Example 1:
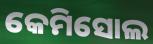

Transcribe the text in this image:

କେମିସୋଲ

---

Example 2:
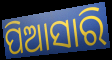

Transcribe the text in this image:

ପିଆସାରି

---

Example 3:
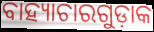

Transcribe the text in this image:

ବାହ୍ୟାଚାରଗୁଡ଼ାକ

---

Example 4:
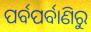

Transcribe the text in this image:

ପର୍ବପର୍ବାଣିରୁ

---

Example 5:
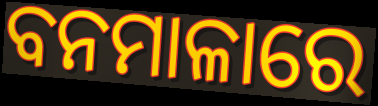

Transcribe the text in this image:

ବନମାଳାରେ